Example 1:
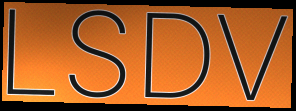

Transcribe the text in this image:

LSDV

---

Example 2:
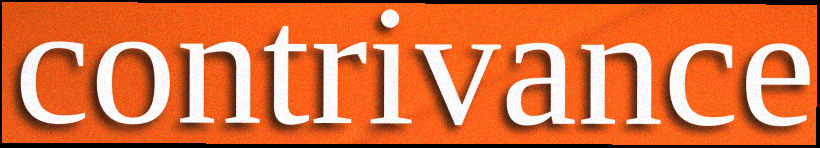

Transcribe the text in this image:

contrivance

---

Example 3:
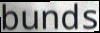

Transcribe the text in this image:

bunds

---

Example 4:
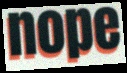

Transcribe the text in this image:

nope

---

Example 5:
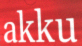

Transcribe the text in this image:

akku